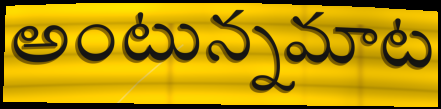
అంటున్నమాట